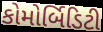
કોમોર્બિડિટી